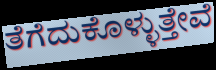
ತೆಗೆದುಕೊಳ್ಳುತ್ತೇವೆ